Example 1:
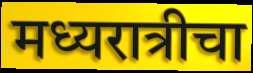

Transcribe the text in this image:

मध्यरात्रीचा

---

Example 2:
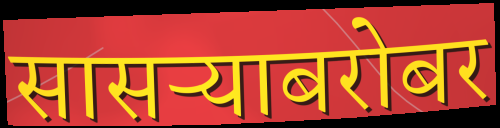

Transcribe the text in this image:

सासऱ्याबरोबर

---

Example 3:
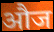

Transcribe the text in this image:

औज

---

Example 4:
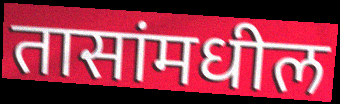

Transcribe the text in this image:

तासांमधील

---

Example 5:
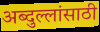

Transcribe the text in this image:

अब्दुल्लांसाठी